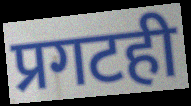
प्रगटही